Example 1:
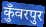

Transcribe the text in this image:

कुँवरपुर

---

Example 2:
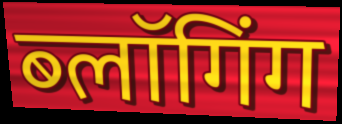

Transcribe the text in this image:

ब्‍लॉगिंग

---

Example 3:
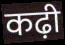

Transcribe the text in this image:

कढ़ी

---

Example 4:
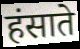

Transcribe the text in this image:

हंसाते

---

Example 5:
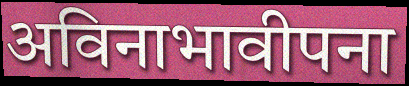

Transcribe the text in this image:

अविनाभावीपना